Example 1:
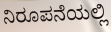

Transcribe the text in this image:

ನಿರೂಪನೆಯಲ್ಲಿ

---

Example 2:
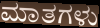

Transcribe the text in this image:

ಮಾತಗಳು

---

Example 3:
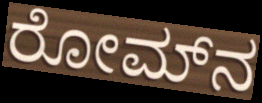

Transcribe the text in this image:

ರೋಮ್‌ನ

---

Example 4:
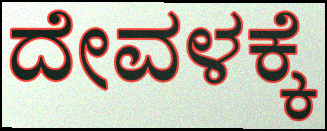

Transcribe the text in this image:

ದೇವಳಕ್ಕೆ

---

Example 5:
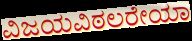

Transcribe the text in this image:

ವಿಜಯವಿಠಲರೇಯಾ